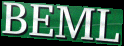
BEML